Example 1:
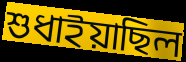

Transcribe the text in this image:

শুধাইয়াছিল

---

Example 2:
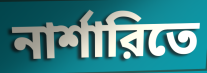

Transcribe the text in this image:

নার্শারিতে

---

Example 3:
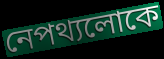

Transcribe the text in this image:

নেপথ্যলোকে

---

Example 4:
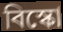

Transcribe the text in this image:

বিস্কো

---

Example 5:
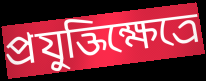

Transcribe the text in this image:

প্রযুক্তিক্ষেত্রে